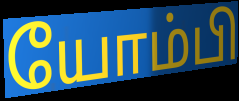
யோம்பி